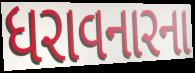
ધરાવનારના